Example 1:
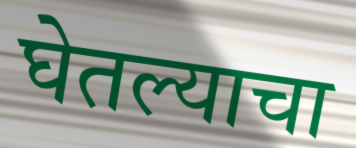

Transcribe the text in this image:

घेतल्याचा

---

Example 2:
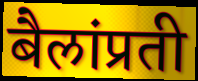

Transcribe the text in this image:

बैलांप्रती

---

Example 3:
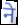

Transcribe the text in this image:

ने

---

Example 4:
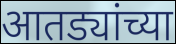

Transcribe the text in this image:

आतड्यांच्या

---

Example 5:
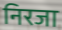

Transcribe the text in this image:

निरजा